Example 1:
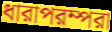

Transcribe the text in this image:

ধারাপরম্পরা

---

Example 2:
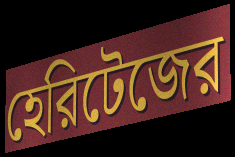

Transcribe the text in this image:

হেরিটেজের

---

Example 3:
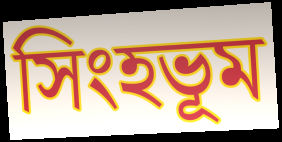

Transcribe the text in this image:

সিংহভূম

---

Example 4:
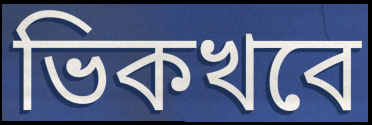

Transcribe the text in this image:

ভিকখবে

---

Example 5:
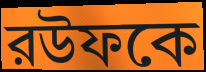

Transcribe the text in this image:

রউফকে